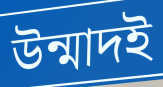
উন্মাদই